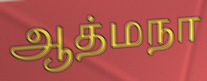
ஆத்மநா